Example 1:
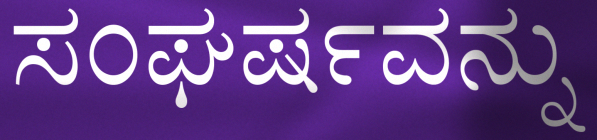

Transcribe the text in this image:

ಸಂಘರ್ಷವನ್ನು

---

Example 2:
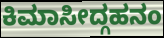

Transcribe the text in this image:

ಕಿಮಾಸೀದ್ಗಹನಂ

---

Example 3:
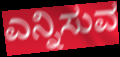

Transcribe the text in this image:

ಎನ್ನಿಸುವ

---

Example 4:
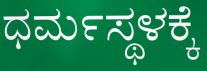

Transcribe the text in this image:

ಧರ್ಮಸ್ಥಳಕ್ಕೆ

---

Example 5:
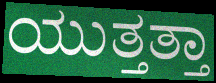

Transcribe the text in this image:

ಯುತ್ತತ್ತಾ